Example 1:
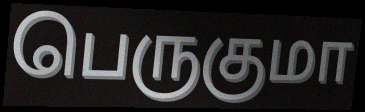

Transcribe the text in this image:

பெருகுமா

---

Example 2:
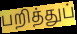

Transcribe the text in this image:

பறித்துப்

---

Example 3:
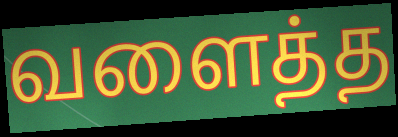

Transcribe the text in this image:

வளைத்த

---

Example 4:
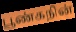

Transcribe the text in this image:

பூண்கநின்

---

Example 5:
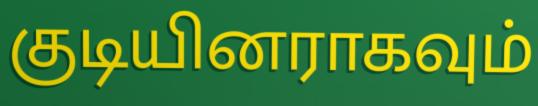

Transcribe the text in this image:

குடியினராகவும்